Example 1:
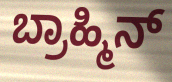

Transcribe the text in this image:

ಬ್ರಾಹ್ಮಿನ್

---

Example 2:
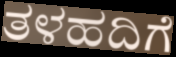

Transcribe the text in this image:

ತಳಹದಿಗೆ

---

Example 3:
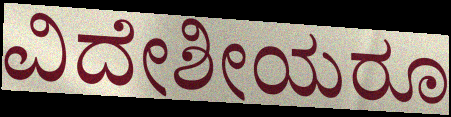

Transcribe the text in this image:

ವಿದೇಶೀಯರೂ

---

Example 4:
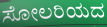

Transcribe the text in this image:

ಸೋಲರಿಯದ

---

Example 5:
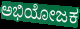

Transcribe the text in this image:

ಅಭಿಯೋಜಕ